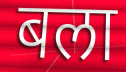
बला